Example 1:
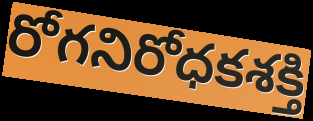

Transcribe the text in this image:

రోగనిరోధకశక్తి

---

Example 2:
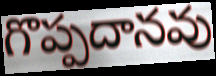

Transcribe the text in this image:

గొప్పదానవు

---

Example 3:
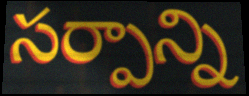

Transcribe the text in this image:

సర్పాన్ని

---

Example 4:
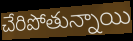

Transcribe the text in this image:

చేరిపోతున్నాయి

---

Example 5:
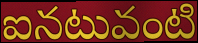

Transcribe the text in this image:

ఐనటువంటి